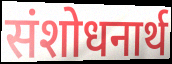
संशोधनार्थ